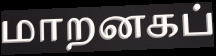
மாறனகப்